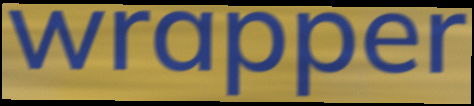
wrapper